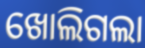
ଖୋଲିଗଲା